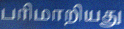
பரிமாறியது